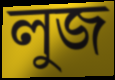
লুজ